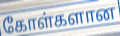
கோள்களான